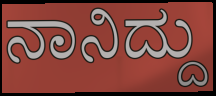
ನಾನಿದ್ದು